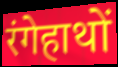
रंगेहाथों